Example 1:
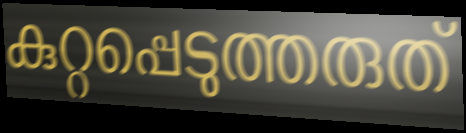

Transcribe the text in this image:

കുറ്റപ്പെടുത്തരുത്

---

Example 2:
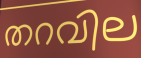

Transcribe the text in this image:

തറവില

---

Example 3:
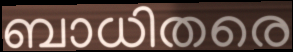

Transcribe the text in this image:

ബാധിതരെ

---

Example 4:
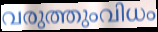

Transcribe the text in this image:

വരുത്തുംവിധം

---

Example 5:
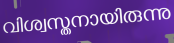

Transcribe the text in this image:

വിശ്വസ്തനായിരുന്നു